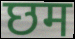
छम